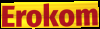
Erokom